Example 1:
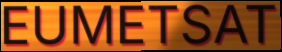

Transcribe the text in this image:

EUMETSAT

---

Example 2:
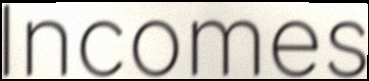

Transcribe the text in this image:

Incomes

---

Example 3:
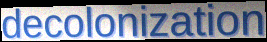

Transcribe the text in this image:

decolonization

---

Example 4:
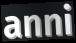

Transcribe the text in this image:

anni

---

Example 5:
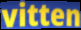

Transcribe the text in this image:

vitten